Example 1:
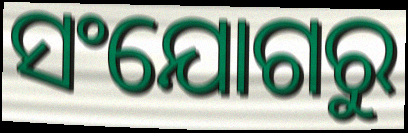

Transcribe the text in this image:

ସଂଯୋଗରୁ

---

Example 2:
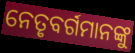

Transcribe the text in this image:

ନେତୃବର୍ଗମାନଙ୍କୁ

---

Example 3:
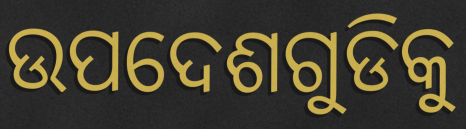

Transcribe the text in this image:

ଉପଦେଶଗୁଡିକୁ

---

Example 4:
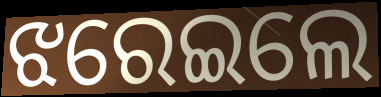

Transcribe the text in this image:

ଝରେଇଲେ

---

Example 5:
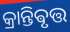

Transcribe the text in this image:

କ୍ରାନ୍ତିଵୃତ୍ତ